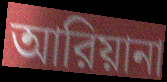
আরিয়ানা